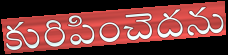
కురిపించెదను